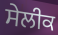
ਸੇਲੀਕ